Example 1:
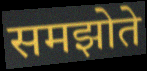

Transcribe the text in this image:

समझोते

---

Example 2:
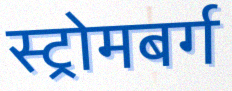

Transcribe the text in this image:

स्ट्रोमबर्ग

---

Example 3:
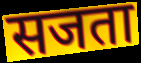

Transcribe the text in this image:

सजता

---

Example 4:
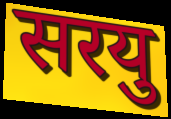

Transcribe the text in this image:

सरयु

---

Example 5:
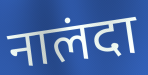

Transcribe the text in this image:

नालंदा